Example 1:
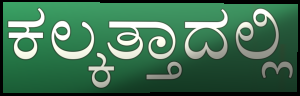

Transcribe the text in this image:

ಕಲ್ಕತ್ತಾದಲ್ಲಿ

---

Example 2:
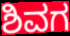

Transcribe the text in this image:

ಶಿವಗ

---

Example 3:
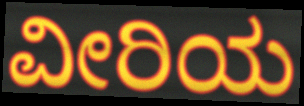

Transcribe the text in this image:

ವೀರಿಯ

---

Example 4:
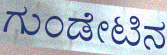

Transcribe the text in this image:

ಗುಂಡೇಟಿನ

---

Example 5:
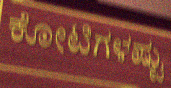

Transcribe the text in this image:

ಕೋಟಿಗಳಷ್ಟು